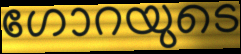
ഗോറയുടെ